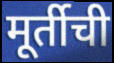
मूर्तीची